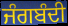
ਜੰਗਬੰਦੀ